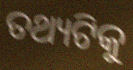
ତଥ୍ୟଟିକୁ